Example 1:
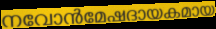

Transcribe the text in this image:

നവോൻമേഷദായകമായ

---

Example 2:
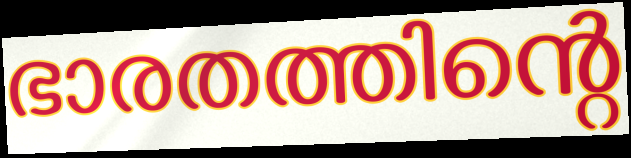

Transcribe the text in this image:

ഭാരതത്തിന്റെ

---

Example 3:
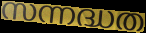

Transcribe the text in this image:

സന്നദ്ധത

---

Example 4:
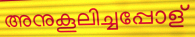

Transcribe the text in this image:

അനുകൂലിച്ചപ്പോള്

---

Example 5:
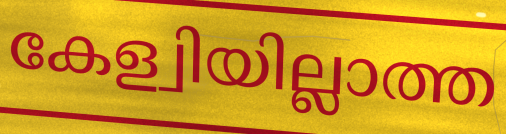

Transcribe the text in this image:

കേള്വിയില്ലാത്ത